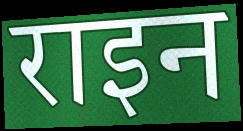
राइन